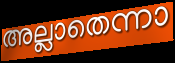
അല്ലാതെന്നാ